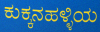
ಕುಕ್ಕನಹಳ್ಳಿಯ